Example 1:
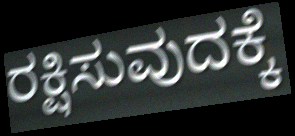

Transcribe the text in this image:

ರಕ್ಷಿಸುವುದಕ್ಕೆ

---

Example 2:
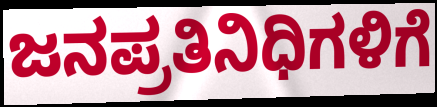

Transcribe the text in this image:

ಜನಪ್ರತಿನಿಧಿಗಳಿಗೆ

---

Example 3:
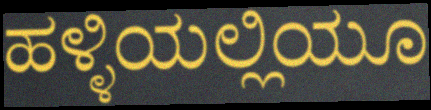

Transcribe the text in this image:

ಹಳ್ಳಿಯಲ್ಲಿಯೂ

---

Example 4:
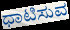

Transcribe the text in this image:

ಧಾಟಿಸುವ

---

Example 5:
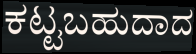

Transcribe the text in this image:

ಕಟ್ಟಬಹುದಾದ